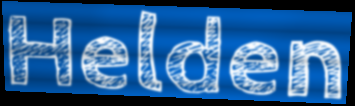
Helden